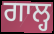
ਗਾਲ੍ਹ